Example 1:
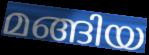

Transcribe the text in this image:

മങ്ങിയ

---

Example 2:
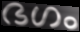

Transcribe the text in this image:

ഭഗം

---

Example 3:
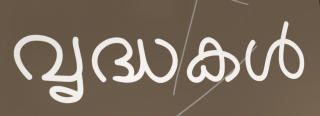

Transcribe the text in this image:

വൃദ്ധകൾ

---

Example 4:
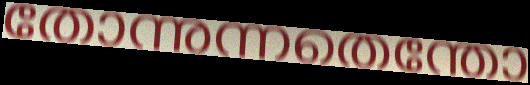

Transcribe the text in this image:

തോന്നുന്നതെന്തോ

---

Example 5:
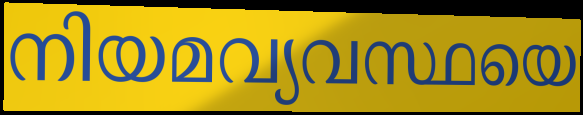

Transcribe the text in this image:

നിയമവ്യവസ്ഥയെ